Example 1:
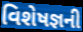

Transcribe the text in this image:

વિશેષજ્ઞની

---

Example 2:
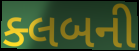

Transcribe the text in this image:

ક્લબની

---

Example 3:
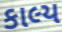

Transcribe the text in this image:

કાલ્ય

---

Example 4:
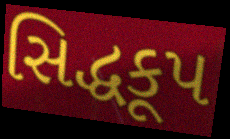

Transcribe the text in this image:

સિદ્ધકૂપ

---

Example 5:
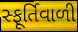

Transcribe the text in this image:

સ્ફૂર્તિવાળી